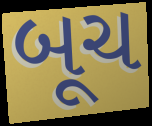
બૂચ